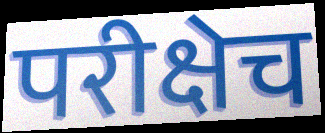
परीक्षेच